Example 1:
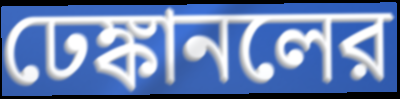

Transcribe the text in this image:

ঢেঙ্কানলের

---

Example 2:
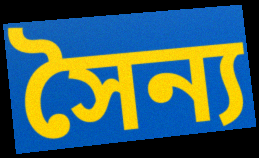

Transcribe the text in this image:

সৈন্য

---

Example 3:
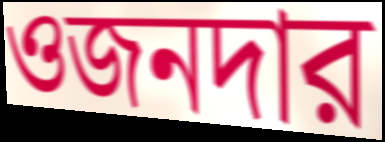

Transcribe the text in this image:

ওজনদার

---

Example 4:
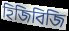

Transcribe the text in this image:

হিজিবিজি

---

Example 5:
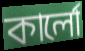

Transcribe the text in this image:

কার্লো